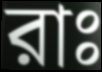
রাঃ